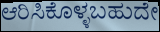
ಆರಿಸಿಕೊಳ್ಳಬಹುದೇ